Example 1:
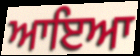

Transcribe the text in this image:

ਆਇਆ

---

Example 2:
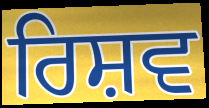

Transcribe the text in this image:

ਰਿਸ਼ਵ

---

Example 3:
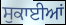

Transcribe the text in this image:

ਸੁਕਾਈਆਂ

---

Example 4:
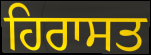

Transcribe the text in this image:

ਹਿਰਾਸਤ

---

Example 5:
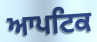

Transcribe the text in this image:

ਆਪਟਿਕ